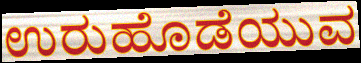
ಉರುಹೊಡೆಯುವ